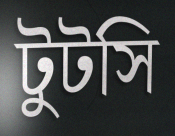
টুটসি